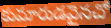
కుమారుడవైనచో